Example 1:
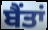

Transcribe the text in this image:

ਬੈਂਤਾਂ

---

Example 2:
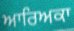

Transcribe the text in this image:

ਆਰਿਅਕਾ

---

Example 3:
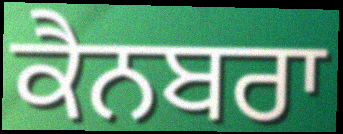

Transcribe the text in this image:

ਕੈਨਬਰਾ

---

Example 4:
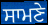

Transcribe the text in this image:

ਸਾਮਣੇ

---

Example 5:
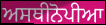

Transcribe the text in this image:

ਅਸਥੀਨੋਪੀਆ